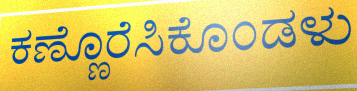
ಕಣ್ಣೊರೆಸಿಕೊಂಡಳು